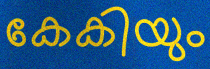
കേകിയും